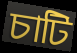
চাটি